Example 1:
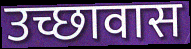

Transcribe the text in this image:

उच्छावास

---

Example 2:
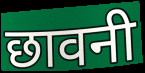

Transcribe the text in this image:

छावनी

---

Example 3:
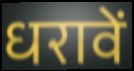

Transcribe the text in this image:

धरावें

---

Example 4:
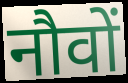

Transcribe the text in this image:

नौवों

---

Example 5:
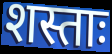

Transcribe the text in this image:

शस्ताः